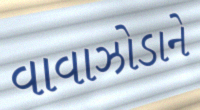
વાવાઝોડાને